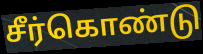
சீர்கொண்டு